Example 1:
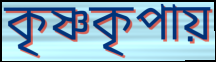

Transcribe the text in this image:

কৃষ্ণকৃপায়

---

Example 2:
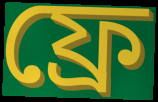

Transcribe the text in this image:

ফ্রে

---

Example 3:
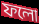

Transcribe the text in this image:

ফলো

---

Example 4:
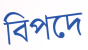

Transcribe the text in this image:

বিপদে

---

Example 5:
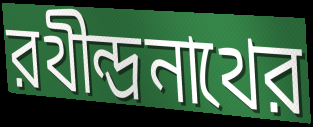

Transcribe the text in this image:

রথীন্দ্রনাথের